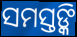
ସମସ୍ତଙ୍କି